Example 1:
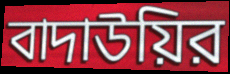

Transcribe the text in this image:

বাদাউয়ির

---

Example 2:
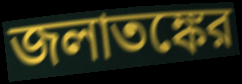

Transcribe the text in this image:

জলাতঙ্কের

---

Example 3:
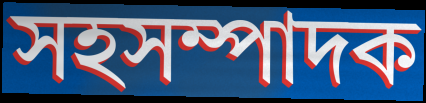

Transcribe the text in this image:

সহসম্পাদক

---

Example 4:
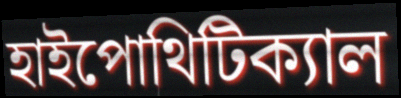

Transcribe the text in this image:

হাইপোথিটিক্যাল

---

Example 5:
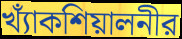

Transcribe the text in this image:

খ্যাঁকশিয়ালনীর